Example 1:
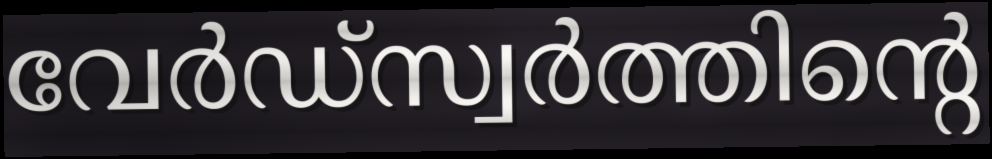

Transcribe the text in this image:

വേർഡ്സ്വർത്തിന്റെ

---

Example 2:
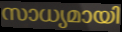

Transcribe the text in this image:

സാധ്യമായി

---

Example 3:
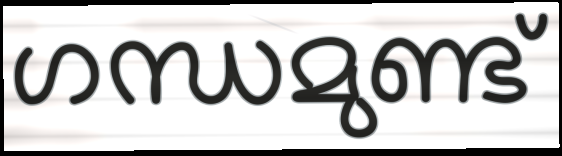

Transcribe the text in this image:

ഗന്ധമുണ്ട്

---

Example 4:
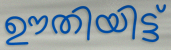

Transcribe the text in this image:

ഊതിയിട്ട്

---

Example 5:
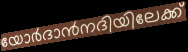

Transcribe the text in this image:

യോർദാൻനദിയിലേക്ക്